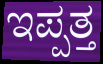
ಇಪ್ಪತ್ತ